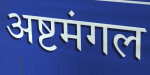
अष्टमंगल